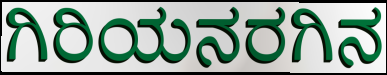
ಗಿರಿಯನರಗಿನ